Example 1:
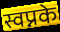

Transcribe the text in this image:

स्वप्नके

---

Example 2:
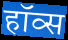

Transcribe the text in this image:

हॉव्स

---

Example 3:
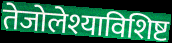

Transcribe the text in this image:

तेजोलेश्याविशिष्ट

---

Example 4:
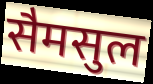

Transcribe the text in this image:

सैमसुल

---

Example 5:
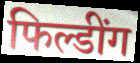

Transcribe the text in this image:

फिल्डींग